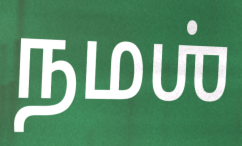
நமஶ்